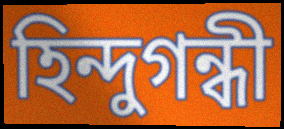
হিন্দুগন্ধী